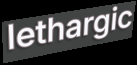
lethargic